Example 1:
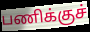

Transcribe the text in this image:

பணிக்குச்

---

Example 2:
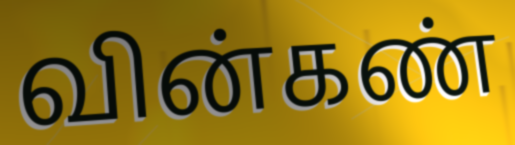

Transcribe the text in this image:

வின்கண்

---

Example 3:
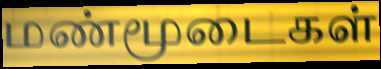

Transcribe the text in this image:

மண்மூடைகள்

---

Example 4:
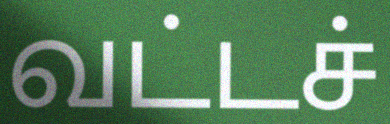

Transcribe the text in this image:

வட்டச்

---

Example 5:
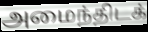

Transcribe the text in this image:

அமைந்திடக்